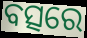
ବତ୍ସରେ